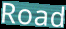
Road